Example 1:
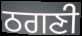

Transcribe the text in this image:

ਠਗਣੀ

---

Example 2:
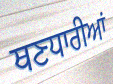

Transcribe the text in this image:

ਥਣਧਾਰੀਆਂ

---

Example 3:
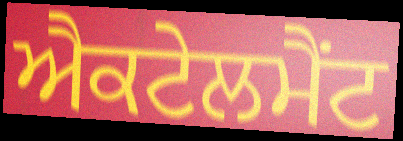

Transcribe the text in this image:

ਐਕਟੇਲਮੈਂਟ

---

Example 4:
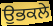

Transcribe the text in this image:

ਉਭਕਲੇ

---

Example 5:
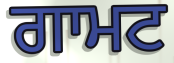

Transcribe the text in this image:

ਗਾਮਟ